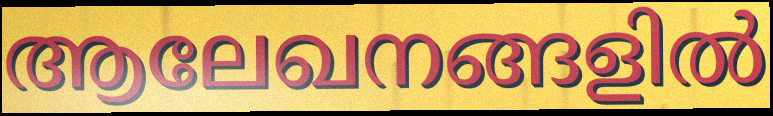
ആലേഖനങ്ങളിൽ